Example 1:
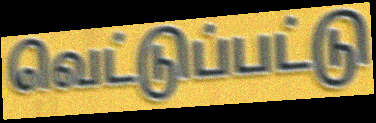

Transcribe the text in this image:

வெட்டுப்பட்டு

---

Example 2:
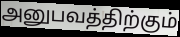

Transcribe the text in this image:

அனுபவத்திற்கும்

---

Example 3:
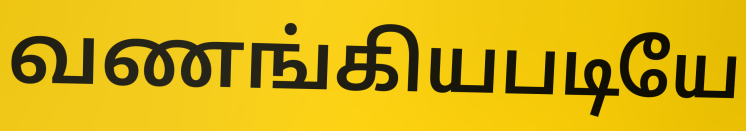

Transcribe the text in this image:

வணங்கியபடியே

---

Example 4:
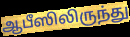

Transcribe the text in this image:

ஆபீஸிலிருந்து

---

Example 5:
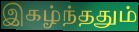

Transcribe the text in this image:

இகழ்ந்ததும்